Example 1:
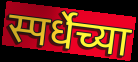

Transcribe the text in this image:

स्पर्धेच्या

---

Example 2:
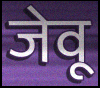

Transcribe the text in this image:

जेवू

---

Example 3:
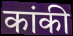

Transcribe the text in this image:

कांकी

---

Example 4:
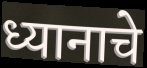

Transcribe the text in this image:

ध्यानाचे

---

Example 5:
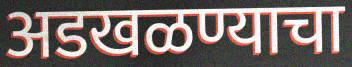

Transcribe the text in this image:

अडखळण्याचा